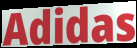
Adidas